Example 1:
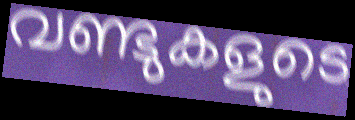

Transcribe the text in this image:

വണ്ടുകളുടെ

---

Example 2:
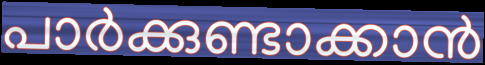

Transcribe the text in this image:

പാർക്കുണ്ടാക്കാൻ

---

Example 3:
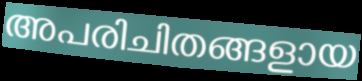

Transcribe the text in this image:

അപരിചിതങ്ങളായ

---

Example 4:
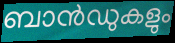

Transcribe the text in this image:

ബാൻഡുകളും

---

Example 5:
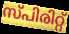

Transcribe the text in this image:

സ്പിരിറ്റ്